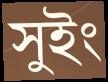
সুইং